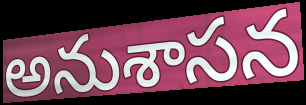
అనుశాసన